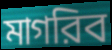
মাগরিব